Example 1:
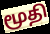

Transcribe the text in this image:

மூதி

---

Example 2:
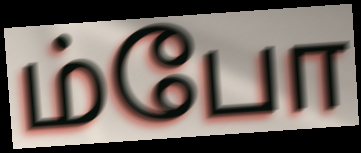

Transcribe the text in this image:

ம்போ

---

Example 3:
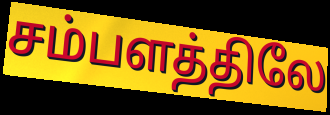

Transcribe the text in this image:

சம்பளத்திலே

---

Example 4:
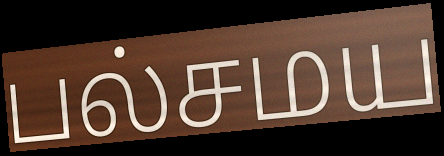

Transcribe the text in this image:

பல்சமய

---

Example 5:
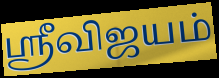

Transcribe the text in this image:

ஸ்ரீவிஜயம்